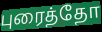
புரைத்தோ